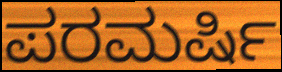
ಪರಮರ್ಷಿ